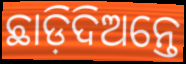
ଛାଡ଼ିଦିଅନ୍ତେ